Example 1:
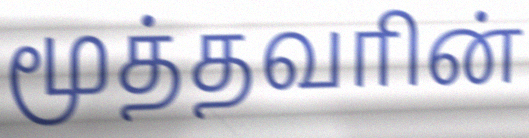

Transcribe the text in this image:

மூத்தவரின்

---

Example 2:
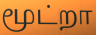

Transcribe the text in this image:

மூட்றா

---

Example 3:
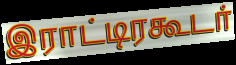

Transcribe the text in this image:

இராட்டிரகூடர்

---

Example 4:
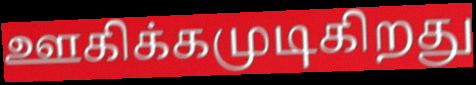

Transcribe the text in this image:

ஊகிக்கமுடிகிறது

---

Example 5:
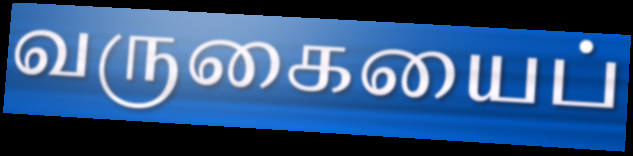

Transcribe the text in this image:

வருகையைப்